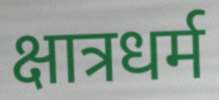
क्षात्रधर्म